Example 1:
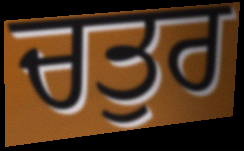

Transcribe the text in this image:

ਚਤੁਰ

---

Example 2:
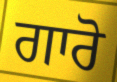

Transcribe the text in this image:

ਗਾਰੋ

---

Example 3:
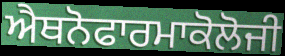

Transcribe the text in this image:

ਐਥਨੋਫਾਰਮਾਕੋਲੋਜੀ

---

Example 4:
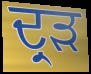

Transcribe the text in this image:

ਦ੍ਰੜ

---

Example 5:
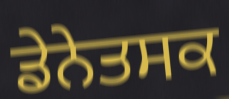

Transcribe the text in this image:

ਡੇਨੇਤਸਕ